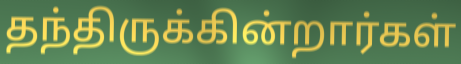
தந்திருக்கின்றார்கள்